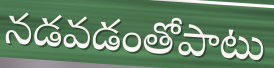
నడవడంతోపాటు